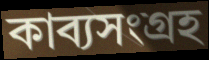
কাব্যসংগ্রহ